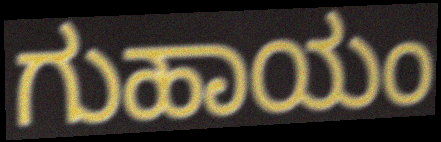
ಗುಹಾಯಂ